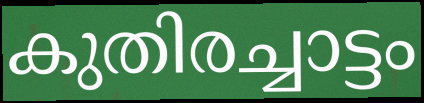
കുതിരച്ചാട്ടം